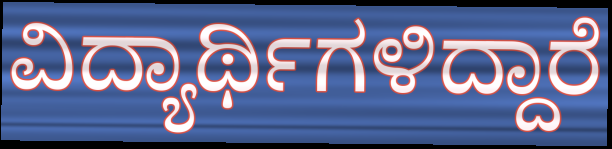
ವಿದ್ಯಾರ್ಥಿಗಳಿದ್ದಾರೆ